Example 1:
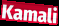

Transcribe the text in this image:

Kamali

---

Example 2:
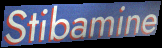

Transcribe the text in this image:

Stibamine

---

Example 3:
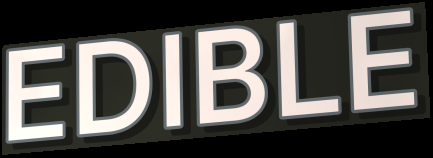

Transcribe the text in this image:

EDIBLE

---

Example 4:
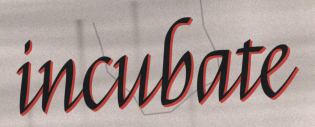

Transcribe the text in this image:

incubate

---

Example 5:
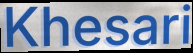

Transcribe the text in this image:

Khesari